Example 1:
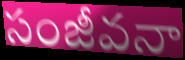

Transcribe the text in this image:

సంజీవనా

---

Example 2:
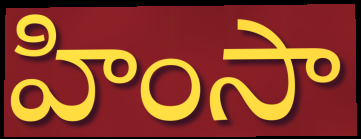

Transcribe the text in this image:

హింసా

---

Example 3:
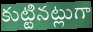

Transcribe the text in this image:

కుట్టినట్లుగా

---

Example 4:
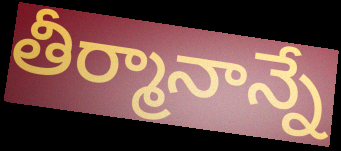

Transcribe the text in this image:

తీర్మానాన్నే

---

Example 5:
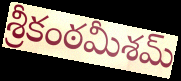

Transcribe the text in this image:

శ్రీకంఠమీశమ్